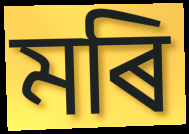
মৰি